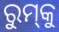
ରୁମ୍‍କୁ